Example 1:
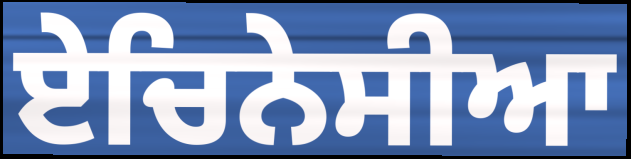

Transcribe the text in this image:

ਏਚਿਨੇਸੀਆ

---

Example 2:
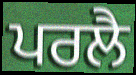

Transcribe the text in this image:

ਪਰਲੈ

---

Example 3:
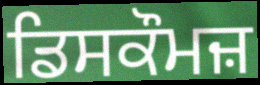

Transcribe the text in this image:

ਡਿਸਕੌਮਜ਼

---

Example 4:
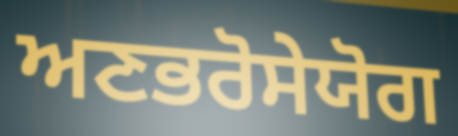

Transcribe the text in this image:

ਅਣਭਰੋਸੇਯੋਗ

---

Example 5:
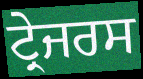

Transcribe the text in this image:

ਟ੍ਰੇਜਰਸ